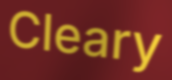
Cleary